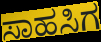
ಸಾಹಸಿಗ